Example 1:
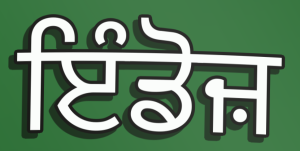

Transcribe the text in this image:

ਇੰਡੋਜ਼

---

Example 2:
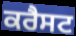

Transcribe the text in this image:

ਕਰੈਸਟ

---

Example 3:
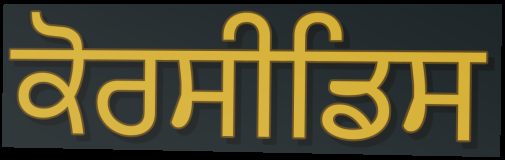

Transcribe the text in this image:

ਕੋਰਸੀਡਿਸ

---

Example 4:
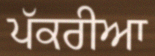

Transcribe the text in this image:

ਪੱਕਰੀਆ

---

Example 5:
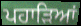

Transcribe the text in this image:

ਪਹਾੜਿਆਂ